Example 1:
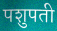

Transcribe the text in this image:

पशुपती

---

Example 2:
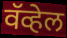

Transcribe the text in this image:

वॅव्हेल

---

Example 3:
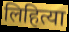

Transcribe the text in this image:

लिहित्या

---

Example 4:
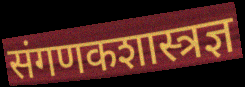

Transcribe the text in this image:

संगणकशास्त्रज्ञ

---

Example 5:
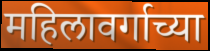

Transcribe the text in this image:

महिलावर्गाच्या